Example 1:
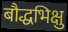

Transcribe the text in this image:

बौद्धभिक्षु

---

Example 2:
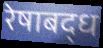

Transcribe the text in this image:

रेषाबद्ध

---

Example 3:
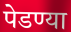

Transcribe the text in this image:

पेडण्या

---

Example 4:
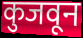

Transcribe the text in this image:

कुजवून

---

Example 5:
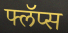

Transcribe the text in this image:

फ्लॅप्स